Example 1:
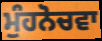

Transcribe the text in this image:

ਮੁੰਹਨੋਚਵਾ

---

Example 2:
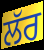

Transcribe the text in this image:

ਲੱਰ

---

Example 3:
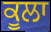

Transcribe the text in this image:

ਕੂਲਾ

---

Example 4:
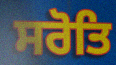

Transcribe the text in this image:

ਸਰੋਤਿ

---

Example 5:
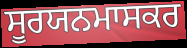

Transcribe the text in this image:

ਸੂਰਯਨਮਾਸਕਰ